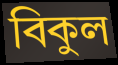
বিকুল